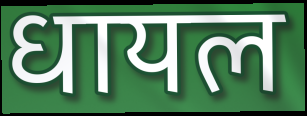
धायल